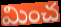
మించ